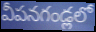
వీపనగండ్లలో